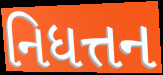
નિધત્તન